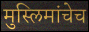
मुस्लिमांचेच